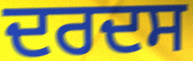
ਦਰਦਸ